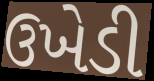
ઉખેડી